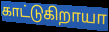
காட்டுகிறாயா